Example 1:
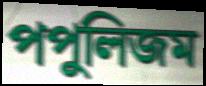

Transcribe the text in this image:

পপুলিজম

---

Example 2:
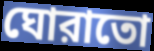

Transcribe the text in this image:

ঘোরাতো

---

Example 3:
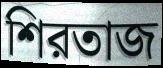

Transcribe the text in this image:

শিরতাজ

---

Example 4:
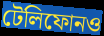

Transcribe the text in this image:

টেলিফোনও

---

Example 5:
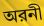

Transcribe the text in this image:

অরনী